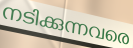
നടിക്കുന്നവരെ